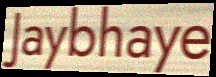
Jaybhaye